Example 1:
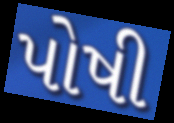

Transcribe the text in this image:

પોષી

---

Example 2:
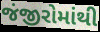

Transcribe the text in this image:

જંજીરોમાંથી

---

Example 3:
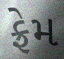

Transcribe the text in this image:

ફ્રેમ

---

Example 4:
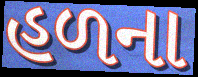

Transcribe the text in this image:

હળના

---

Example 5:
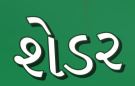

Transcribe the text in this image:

શેડર